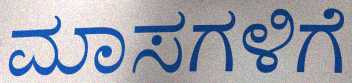
ಮಾಸಗಳಿಗೆ